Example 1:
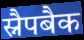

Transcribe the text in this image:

स्नैपबैक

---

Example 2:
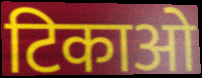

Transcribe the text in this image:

टिकाओ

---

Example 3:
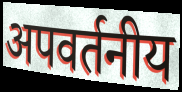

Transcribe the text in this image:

अपवर्तनीय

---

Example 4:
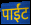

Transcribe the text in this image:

पाईंट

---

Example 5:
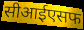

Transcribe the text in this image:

सीआईएसफ